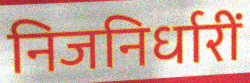
निजनिर्धारीं